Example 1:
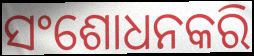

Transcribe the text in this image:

ସଂଶୋଧନକରି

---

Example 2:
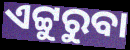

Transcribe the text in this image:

ଏଟ୍ଟୁରୁବା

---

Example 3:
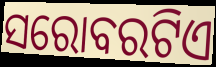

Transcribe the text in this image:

ସରୋବରଟିଏ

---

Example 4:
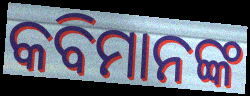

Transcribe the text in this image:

କବିମାନଙ୍କ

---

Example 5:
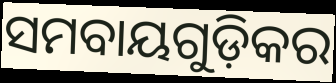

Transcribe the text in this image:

ସମବାୟଗୁଡ଼ିକର